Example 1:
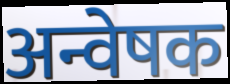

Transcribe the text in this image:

अन्वेषक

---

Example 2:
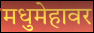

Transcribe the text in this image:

मधुमेहावर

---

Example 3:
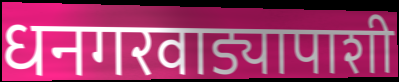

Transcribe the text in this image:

धनगरवाड्यापाशी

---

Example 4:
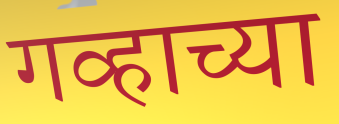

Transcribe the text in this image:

गव्हाच्या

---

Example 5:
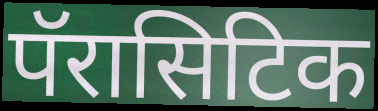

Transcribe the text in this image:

पॅरासिटिक